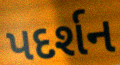
પદર્શન